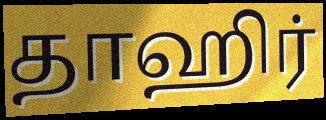
தாஹிர்